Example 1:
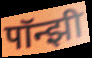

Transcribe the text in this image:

पॉन्झी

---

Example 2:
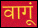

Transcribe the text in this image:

वागूं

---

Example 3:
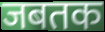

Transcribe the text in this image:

जबतक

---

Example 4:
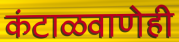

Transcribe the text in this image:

कंटाळवाणेही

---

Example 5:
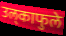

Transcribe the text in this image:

उल्काफुले